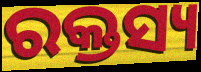
ରକ୍ତସ୍ୟ